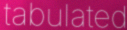
tabulated